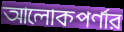
আলোকপর্ণার